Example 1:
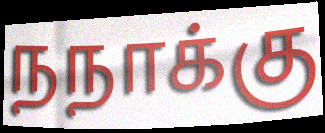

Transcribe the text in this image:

நநாக்கு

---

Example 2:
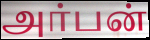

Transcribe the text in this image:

அர்பன்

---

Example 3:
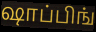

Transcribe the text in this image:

ஷாப்பிங்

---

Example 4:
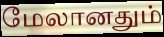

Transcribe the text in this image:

மேலானதும்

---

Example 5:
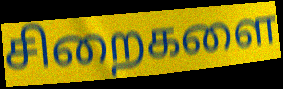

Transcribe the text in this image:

சிறைகளை